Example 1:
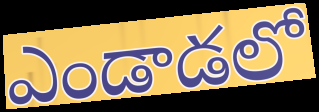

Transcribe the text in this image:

ఎండాడలో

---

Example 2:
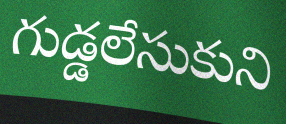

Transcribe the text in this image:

గుడ్డలేసుకుని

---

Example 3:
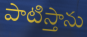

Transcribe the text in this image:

పాటిస్తాను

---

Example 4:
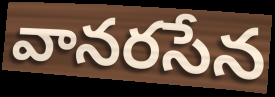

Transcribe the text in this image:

వానరసేన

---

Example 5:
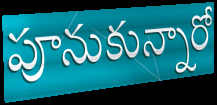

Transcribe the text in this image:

పూనుకున్నారో